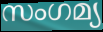
സംഗമ്യ